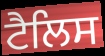
ਟੈਲਿਸ